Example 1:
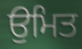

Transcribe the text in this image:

ਉਮਿਤ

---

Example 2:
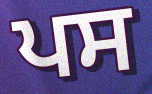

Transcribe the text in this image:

ਪਸ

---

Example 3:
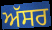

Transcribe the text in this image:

ਅੱਸਰ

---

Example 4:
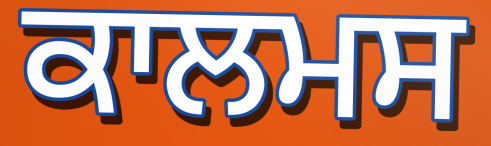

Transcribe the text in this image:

ਕਾਲਮਸ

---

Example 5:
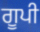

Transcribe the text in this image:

ਗੂਪੀ